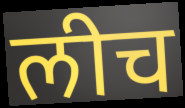
लीच